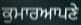
ਕੁਮਾਰਆਪਣੇ